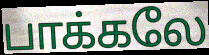
பாக்கலே